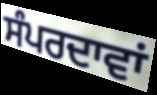
ਸੰਪਰਦਾਵਾਂ